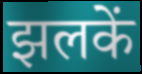
झलकें